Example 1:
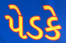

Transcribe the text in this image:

પેડકે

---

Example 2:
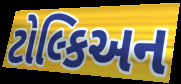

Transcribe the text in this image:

ટોલ્કિઅન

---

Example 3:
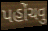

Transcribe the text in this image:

પહોંચવુ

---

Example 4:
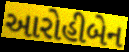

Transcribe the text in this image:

આરોહીબેન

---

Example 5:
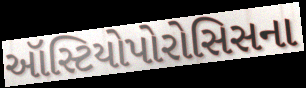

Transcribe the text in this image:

ઑસ્ટિયોપોરોસિસના